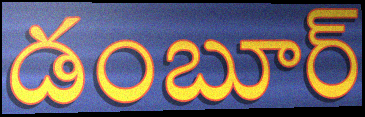
డంబూర్